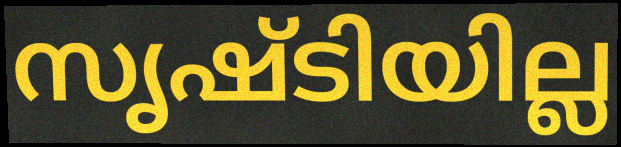
സൃഷ്ടിയില്ല